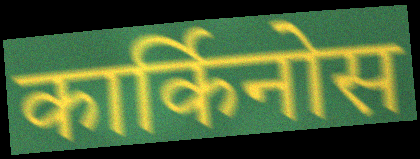
कार्किनोस